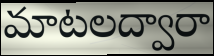
మాటలద్వారా